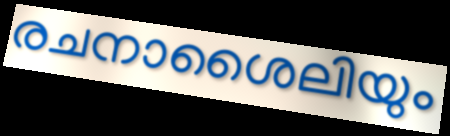
രചനാശൈലിയും